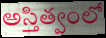
అస్తిత్వంలో